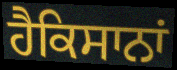
ਹੈਕਿਸਾਨਾਂ